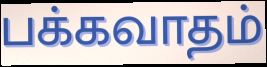
பக்கவாதம்